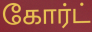
கோர்ட்